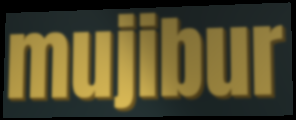
mujibur